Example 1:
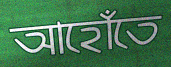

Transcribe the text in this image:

আহোঁতে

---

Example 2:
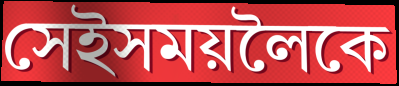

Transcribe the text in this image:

সেইসময়লৈকে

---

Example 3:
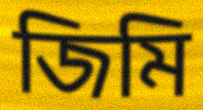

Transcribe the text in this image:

জিমি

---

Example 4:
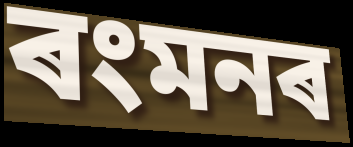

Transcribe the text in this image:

ৰংমনৰ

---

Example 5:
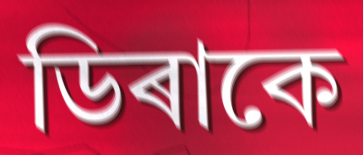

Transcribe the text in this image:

ডিৰাকে